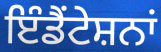
ਇੰਡੈਂਟੇਸ਼ਨਾਂ